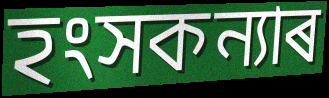
হংসকন্যাৰ